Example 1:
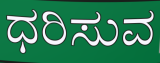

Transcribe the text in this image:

ಧರಿಸುವ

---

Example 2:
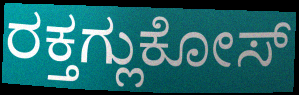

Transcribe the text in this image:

ರಕ್ತಗ್ಲುಕೋಸ್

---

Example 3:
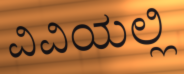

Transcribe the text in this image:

ವಿವಿಯಲ್ಲಿ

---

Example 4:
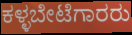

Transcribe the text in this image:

ಕಳ್ಳಬೇಟೆಗಾರರು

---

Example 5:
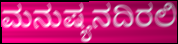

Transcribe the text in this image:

ಮನುಷ್ಯನದಿರಲಿ